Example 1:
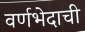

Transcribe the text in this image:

वर्णभेदाची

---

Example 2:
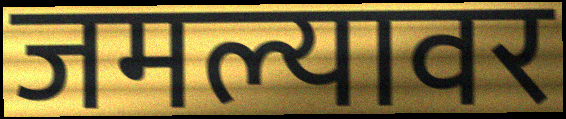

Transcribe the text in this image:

जमल्यावर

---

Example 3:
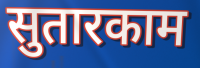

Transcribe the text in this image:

सुतारकाम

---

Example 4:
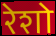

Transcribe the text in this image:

रेशो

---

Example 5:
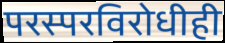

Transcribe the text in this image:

परस्परविरोधीही